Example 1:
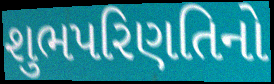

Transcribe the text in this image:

શુભપરિણતિનો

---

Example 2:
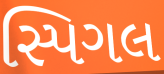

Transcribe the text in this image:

સ્પિગલ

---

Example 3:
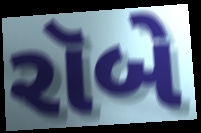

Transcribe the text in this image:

રૉબે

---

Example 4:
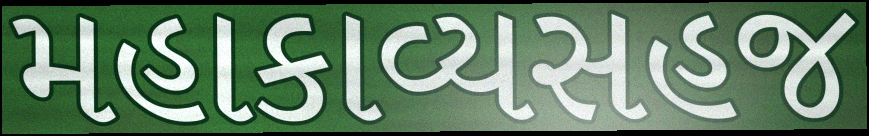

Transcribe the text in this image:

મહાકાવ્યસહજ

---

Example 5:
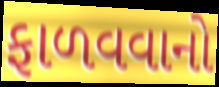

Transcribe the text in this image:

ફાળવવાનો